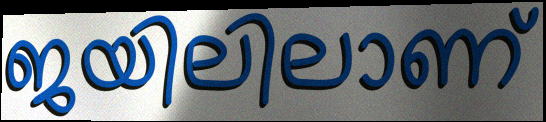
ജയിലിലാണ്